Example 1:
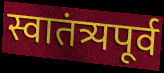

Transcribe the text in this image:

स्वातंत्र्यपूर्व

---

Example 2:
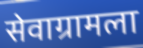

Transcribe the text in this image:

सेवाग्रामला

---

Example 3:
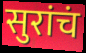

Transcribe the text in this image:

सुरांचं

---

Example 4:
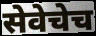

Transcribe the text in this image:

सेवेचेच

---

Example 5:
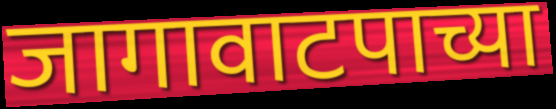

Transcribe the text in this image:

जागावाटपाच्या